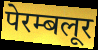
पेरम्बलूर